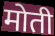
मोती